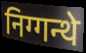
निग्गन्थे